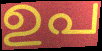
ഉപ